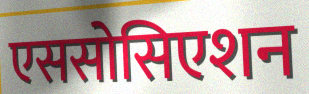
एससोसिएशन